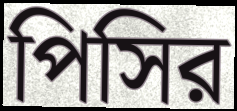
পিসির